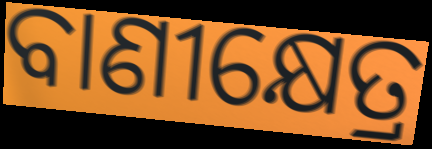
ବାଣୀକ୍ଷେତ୍ର